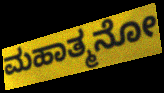
ಮಹಾತ್ಮನೋ